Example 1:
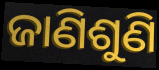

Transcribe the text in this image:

ଜାଣିଶୁଣି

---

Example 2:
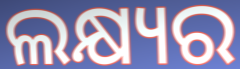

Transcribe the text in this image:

ଲକ୍ଷ୍ୟର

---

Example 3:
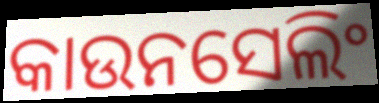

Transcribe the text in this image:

କାଉନସେଲିଂ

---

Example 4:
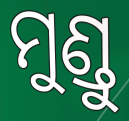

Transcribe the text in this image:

ମୁଣ୍ଡୁ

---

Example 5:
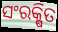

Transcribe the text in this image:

ସଂରକ୍ଷିତ